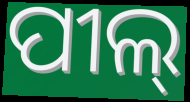
ପୀଲ୍